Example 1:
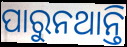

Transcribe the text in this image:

ପାରୁନଥାନ୍ତି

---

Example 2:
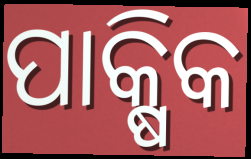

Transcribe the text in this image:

ପାକ୍ଷିକ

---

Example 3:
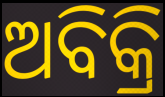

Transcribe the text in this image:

ଅବିକ୍ରି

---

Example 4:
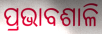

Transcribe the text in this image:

ପ୍ରଭାବଶାଳି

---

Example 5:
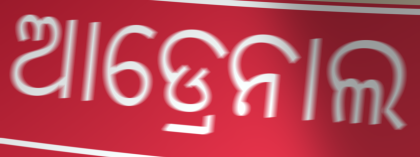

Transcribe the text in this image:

ଆଡ୍ରେନାଲ